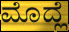
ಮೊದ್ಲೆ